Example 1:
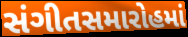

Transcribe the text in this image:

સંગીતસમારોહમાં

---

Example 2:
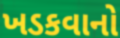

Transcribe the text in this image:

ખડકવાનો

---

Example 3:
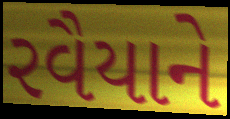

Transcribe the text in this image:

રવૈયાને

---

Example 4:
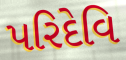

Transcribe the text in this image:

પરિદેવિ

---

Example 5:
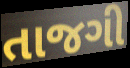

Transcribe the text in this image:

તાજગી